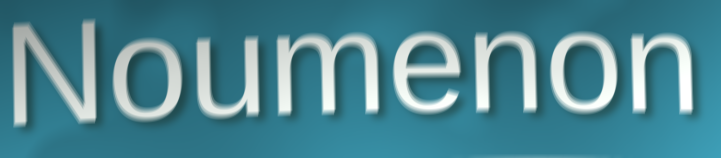
Noumenon